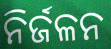
ନିର୍ଜଳନ